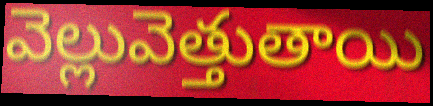
వెల్లువెత్తుతాయి